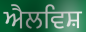
ਐਲਵਿਸ਼